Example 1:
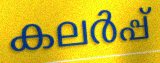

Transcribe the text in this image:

കലർപ്പ്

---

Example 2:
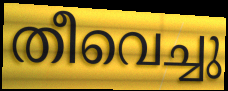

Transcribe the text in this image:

തീവെച്ചു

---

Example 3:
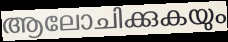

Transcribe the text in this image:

ആലോചിക്കുകയും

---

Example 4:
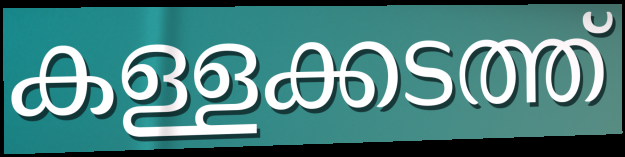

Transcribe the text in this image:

കള്ളക്കടത്ത്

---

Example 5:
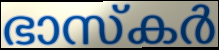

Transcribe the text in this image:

ഭാസ്‌കർ